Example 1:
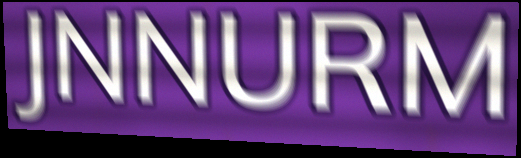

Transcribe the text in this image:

JNNURM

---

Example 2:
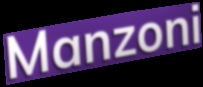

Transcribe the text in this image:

Manzoni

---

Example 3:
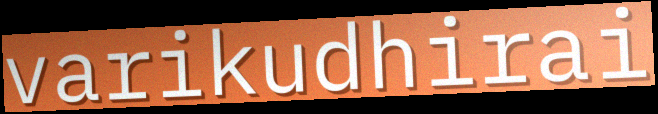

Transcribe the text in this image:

varikudhirai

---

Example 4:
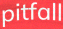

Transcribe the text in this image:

pitfall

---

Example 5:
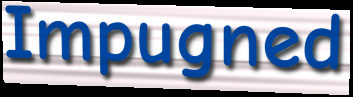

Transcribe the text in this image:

Impugned